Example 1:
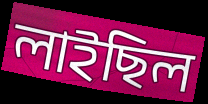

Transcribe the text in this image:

লাইছিল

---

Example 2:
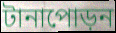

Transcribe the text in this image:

টানাপোড়ন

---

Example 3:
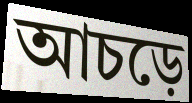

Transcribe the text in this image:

আচড়ে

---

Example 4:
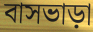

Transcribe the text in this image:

বাসভাড়া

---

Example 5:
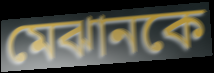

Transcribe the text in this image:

মেঝানকে